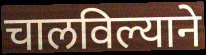
चालविल्याने